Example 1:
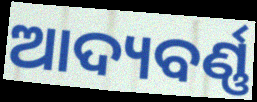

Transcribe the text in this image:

ଆଦ୍ୟବର୍ଣ୍ଣ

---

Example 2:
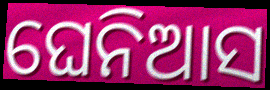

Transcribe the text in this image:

ଘେନିଆସ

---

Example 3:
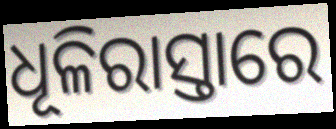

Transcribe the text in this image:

ଧୂଳିରାସ୍ତାରେ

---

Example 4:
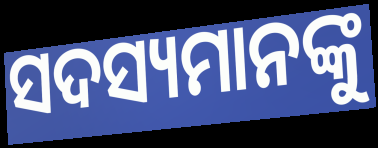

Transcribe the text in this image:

ସଦସ୍ୟମାନଙ୍କୁ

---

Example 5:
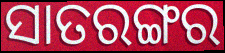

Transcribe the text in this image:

ସାତରଙ୍ଗର